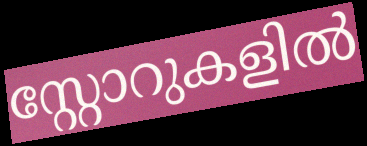
സ്റ്റോറുകളിൽ